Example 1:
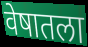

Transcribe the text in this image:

वेषातला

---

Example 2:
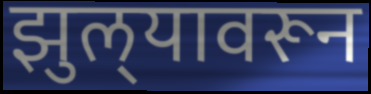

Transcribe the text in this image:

झुल्यावरून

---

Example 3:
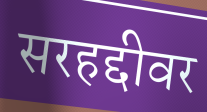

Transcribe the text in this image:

सरहद्दीवर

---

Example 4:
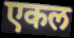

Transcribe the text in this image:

एकल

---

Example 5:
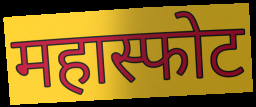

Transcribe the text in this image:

महास्फोट